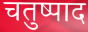
चतुष्पाद